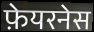
फ़ेयरनेस